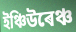
ইঞ্চিউৰেঞ্চ